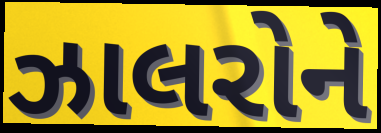
ઝાલરોને